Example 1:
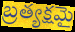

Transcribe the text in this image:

బ్రత్యక్షమై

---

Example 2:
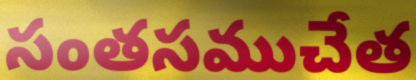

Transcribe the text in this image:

సంతసముచేత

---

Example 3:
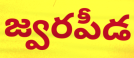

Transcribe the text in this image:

జ్వరపీడ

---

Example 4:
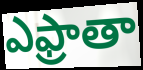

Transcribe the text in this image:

ఎఫ్రాతా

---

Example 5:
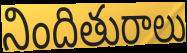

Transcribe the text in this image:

నిందితురాలు